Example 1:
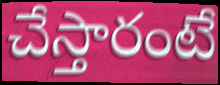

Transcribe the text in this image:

చేస్తారంటే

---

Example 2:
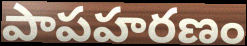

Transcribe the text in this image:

పాపహరణం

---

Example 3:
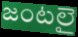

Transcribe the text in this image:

జంటలై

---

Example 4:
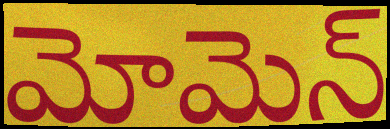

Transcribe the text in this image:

మోమెన్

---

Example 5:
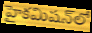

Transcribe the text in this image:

హైకమిషన్‌లో